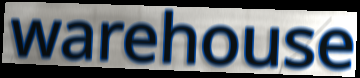
warehouse